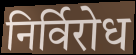
निर्विरोध